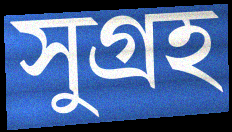
সুগ্রহ